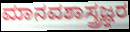
ಮಾನವಶಾಸ್ತ್ರಜ್ಞರ